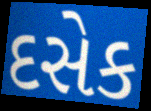
દસેક